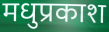
मधुप्रकाश